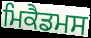
ਮਿਕੈਡਮਸ